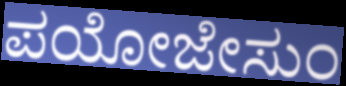
ಪಯೋಜೇಸುಂ